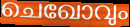
ചെഖോവും